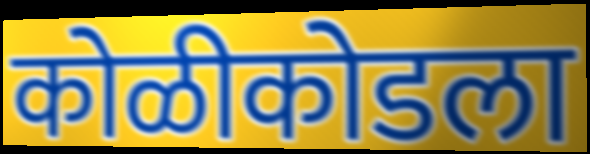
कोळीकोडला